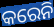
କରେନି